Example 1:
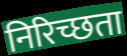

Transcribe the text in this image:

निरिच्छता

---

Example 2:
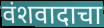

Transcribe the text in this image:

वंशवादाचा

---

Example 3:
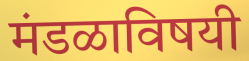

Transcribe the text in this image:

मंडळाविषयी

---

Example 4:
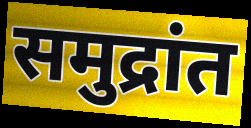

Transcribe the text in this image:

समुद्रांत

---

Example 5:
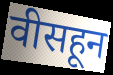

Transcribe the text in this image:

वीसहून